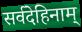
सर्वदेहिनाम्